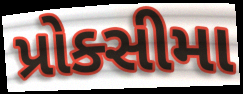
પ્રોક્સીમા